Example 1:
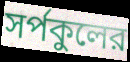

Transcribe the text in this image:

সর্পকুলের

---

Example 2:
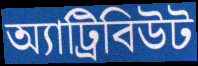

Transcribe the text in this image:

অ্যাট্রিবিউট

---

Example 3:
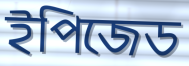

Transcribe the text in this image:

ইপিজেড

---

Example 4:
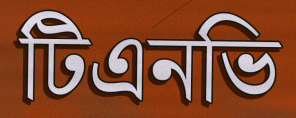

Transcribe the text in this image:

টিএনভি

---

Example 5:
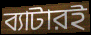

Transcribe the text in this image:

ব্যাটারই